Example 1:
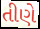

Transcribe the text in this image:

તીણે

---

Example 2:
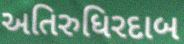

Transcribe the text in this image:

અતિરુધિરદાબ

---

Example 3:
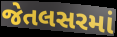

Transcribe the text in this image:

જેતલસરમાં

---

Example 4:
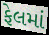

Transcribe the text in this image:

ફેલમાં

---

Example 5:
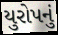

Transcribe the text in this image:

યુરોપનું